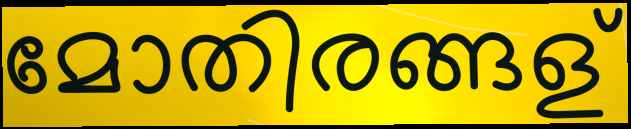
മോതിരങ്ങള്